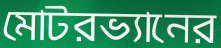
মোটরভ্যানের